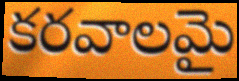
కరవాలమై